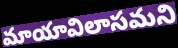
మాయావిలాసమని